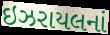
ઇઝરાયલનાં